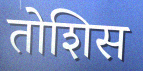
तोशिस